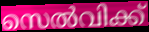
സെൽവിക്ക്